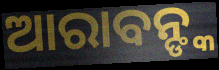
ଆରାବନ୍ଙ୍କ